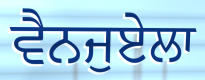
ਵੈਨਜੁਏਲਾ